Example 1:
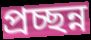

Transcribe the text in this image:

প্রচ্ছন্ন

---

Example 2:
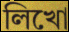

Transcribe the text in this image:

লিখো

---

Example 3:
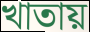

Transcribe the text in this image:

খাতায়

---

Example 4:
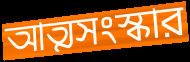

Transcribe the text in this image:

আত্মসংস্কার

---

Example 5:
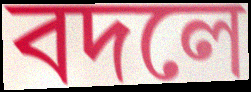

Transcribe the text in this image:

বদলে